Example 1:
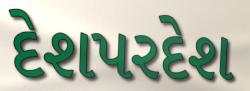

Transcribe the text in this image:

દેશપરદેશ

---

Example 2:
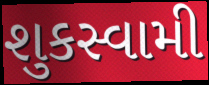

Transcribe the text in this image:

શુકસ્વામી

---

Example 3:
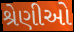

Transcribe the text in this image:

શ્રેણીઓ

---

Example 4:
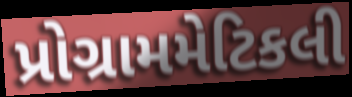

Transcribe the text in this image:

પ્રોગ્રામમેટિકલી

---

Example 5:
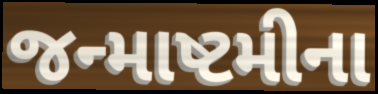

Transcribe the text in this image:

જન્માષ્ટમીના